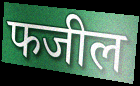
फजील